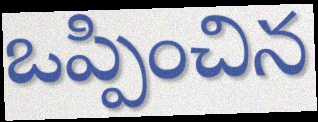
ఒప్పించిన